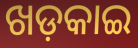
ଖଡ଼କାଇ